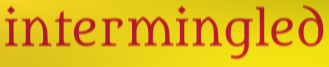
intermingled